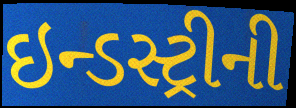
ઇન્ડસ્ટ્રીની